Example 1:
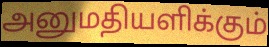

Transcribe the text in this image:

அனுமதியளிக்கும்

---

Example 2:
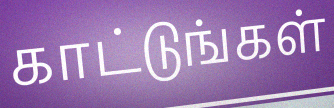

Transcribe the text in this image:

காட்டுங்கள்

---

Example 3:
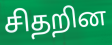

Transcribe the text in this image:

சிதறின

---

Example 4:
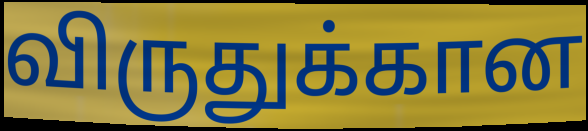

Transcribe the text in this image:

விருதுக்கான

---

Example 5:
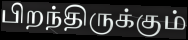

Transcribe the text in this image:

பிறந்திருக்கும்